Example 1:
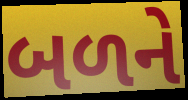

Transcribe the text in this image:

બળને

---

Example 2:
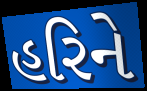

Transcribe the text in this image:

હરિને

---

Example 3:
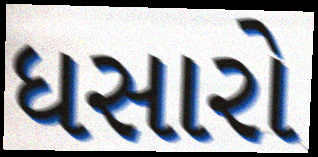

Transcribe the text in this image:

ધસારો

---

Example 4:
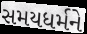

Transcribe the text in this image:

સમયધર્મને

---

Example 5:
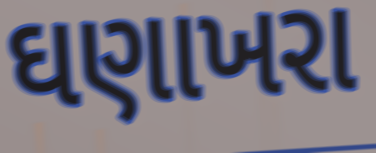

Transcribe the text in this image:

ઘણાખરા